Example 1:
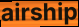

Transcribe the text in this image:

airship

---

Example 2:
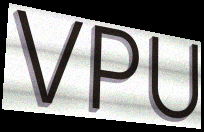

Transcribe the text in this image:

VPU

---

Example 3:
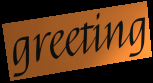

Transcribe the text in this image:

greeting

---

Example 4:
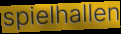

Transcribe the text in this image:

spielhallen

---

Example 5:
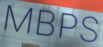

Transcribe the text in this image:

MBPS